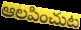
ఆలపించుట